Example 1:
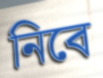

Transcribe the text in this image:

নিবে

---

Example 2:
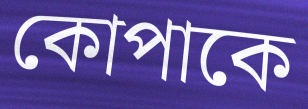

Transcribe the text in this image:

কোপাকে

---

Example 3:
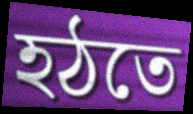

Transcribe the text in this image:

হঠতে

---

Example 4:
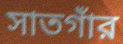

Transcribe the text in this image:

সাতগাঁর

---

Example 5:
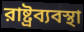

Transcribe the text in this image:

রাষ্ট্রব্যবস্থা